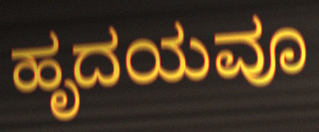
ಹೃದಯವೂ